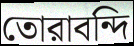
তোরাবন্দি